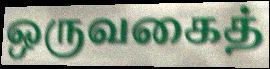
ஒருவகைத்